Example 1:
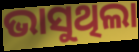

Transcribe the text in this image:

ଭାସୁଥିଲା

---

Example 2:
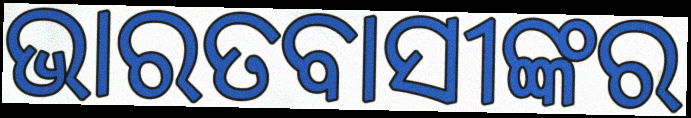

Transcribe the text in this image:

ଭାରତବାସୀଙ୍କର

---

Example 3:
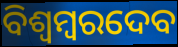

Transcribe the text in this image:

ବିଶ୍ୱମ୍ବରଦେବ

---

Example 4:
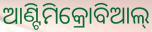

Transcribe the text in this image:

ଆଣ୍ଟିମିକ୍ରୋବିଆଲ୍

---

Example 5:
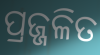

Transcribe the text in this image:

ପ୍ରଜ୍ଜଳିତ